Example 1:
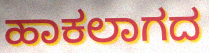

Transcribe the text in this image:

ಹಾಕಲಾಗದ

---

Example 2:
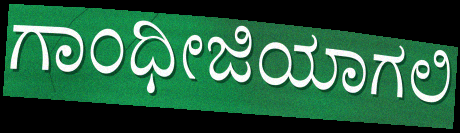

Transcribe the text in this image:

ಗಾಂಧೀಜಿಯಾಗಲಿ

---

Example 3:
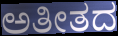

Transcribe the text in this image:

ಅತೀತದ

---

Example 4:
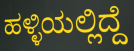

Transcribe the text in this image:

ಹಳ್ಳಿಯಲ್ಲಿದ್ದೆ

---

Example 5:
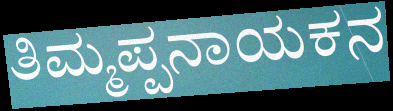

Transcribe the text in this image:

ತಿಮ್ಮಪ್ಪನಾಯಕನ